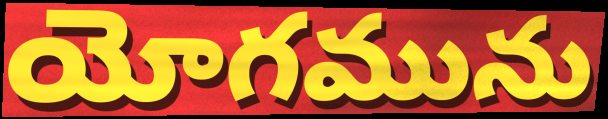
యోగమును